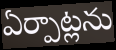
ఏర్పాట్లను